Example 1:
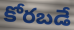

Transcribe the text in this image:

కోరబడే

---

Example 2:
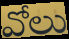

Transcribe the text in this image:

వోలు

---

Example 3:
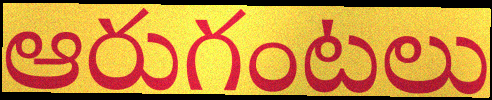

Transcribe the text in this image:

ఆరుగంటలు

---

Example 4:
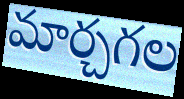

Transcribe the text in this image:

మార్చగల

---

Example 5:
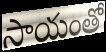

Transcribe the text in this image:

సాయంతో